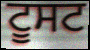
ਟੂਸਟ